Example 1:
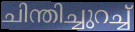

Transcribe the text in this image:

ചിന്തിച്ചുറച്ച്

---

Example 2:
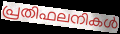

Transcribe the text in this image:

പ്രതിഫലനികൾ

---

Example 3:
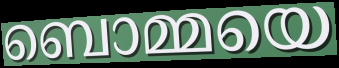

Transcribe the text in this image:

ബൊമ്മയെ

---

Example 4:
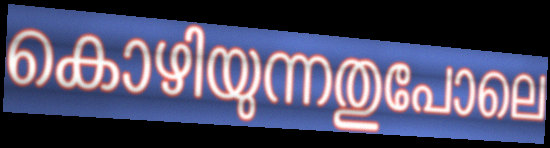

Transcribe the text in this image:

കൊഴിയുന്നതുപോലെ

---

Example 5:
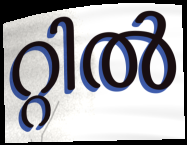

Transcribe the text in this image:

റ്റിൽ